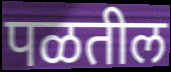
पळतील